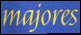
majores